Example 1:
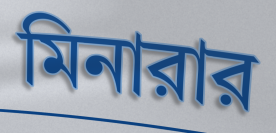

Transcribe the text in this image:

মিনারার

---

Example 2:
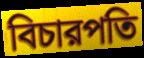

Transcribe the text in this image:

বিচারপতি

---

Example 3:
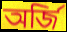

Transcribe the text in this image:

অর্জি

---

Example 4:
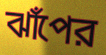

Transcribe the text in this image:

ঝাঁপের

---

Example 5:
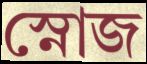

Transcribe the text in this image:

স্নোজ